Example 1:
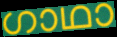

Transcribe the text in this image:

ഗാഥാ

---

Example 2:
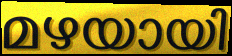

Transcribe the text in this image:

മഴയായി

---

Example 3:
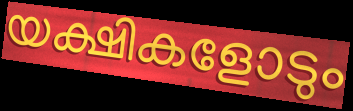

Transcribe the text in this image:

യക്ഷികളോടും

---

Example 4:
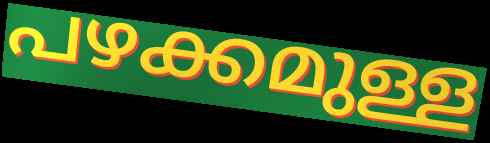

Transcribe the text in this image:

പഴക്കമുള്ള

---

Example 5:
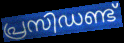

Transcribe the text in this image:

പ്രസിഡണ്ട്